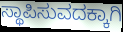
ಸ್ಥಾಪಿಸುವದಕ್ಕಾಗಿ